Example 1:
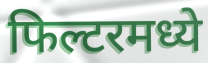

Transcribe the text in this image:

फिल्टरमध्ये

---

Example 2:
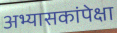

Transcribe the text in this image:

अभ्यासकांपेक्षा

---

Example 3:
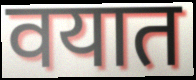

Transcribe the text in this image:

वयात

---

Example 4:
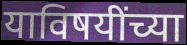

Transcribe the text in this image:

याविषयींच्या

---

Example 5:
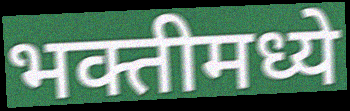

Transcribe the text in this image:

भक्तीमध्ये